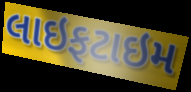
લાઇફટાઇમ